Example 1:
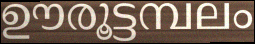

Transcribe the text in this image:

ഊരൂട്ടമ്പലം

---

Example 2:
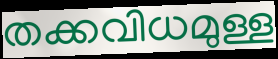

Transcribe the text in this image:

തക്കവിധമുള്ള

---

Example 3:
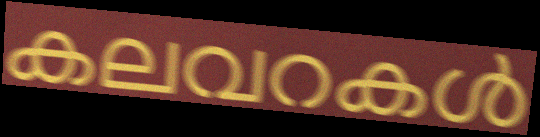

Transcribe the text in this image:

കലവറകൾ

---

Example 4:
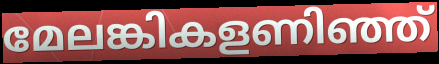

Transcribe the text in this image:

മേലങ്കികളണിഞ്ഞ്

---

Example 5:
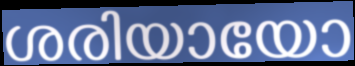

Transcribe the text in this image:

ശരിയായോ